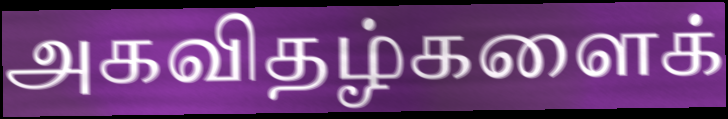
அகவிதழ்களைக்